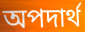
অপদার্থ